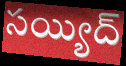
సయ్యిద్